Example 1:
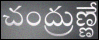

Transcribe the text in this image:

చంద్రుణ్ణే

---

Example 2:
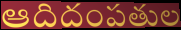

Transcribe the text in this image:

ఆదిదంపతుల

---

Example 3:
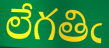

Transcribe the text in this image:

లేగతిఁ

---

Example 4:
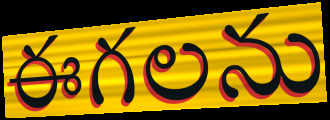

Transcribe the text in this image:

ఈగలను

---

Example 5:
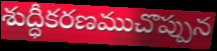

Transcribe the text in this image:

శుద్ధీకరణముచొప్పున